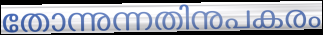
തോന്നുന്നതിനുപകരം